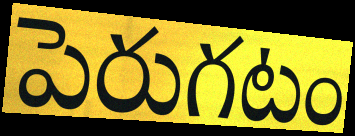
పెరుగటం